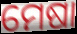
ମେଷା